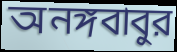
অনঙ্গবাবুর